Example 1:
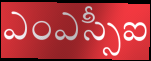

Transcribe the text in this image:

ఎంఎస్సీఐ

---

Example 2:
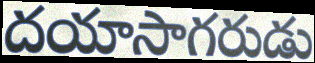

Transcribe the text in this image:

దయాసాగరుడు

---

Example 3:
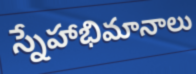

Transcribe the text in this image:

స్నేహాభిమానాలు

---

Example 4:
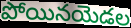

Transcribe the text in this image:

పోయినయెడల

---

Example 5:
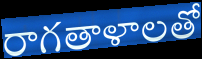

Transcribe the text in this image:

రాగతాళాలతో